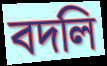
বদলি